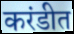
करंडीत